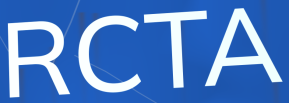
RCTA